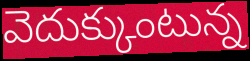
వెదుక్కుంటున్న